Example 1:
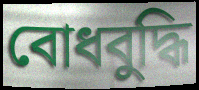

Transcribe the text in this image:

বোধবুদ্ধি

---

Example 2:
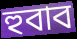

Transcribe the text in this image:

হুবাব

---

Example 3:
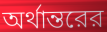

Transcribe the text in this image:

অর্থান্তরের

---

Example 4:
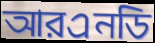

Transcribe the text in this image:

আরএনডি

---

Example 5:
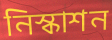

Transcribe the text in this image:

নিস্কাশন